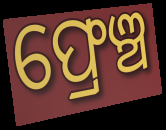
ଫ୍ରେଞ୍ଚ